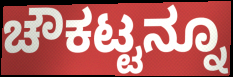
ಚೌಕಟ್ಟನ್ನೂ